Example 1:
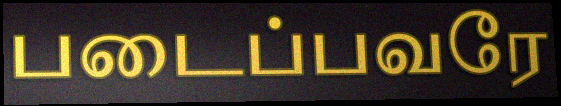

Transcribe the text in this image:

படைப்பவரே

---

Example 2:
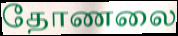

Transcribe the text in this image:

தோணலை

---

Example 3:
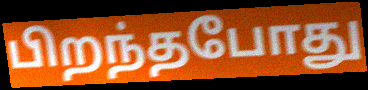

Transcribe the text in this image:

பிறந்தபோது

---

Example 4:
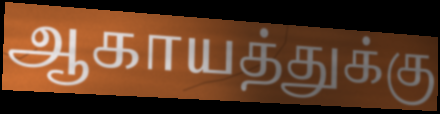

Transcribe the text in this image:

ஆகாயத்துக்கு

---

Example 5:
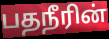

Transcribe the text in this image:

பதநீரின்